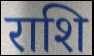
राशि